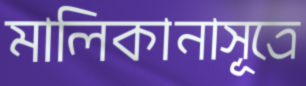
মালিকানাসূত্রে